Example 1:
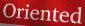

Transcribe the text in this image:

Oriented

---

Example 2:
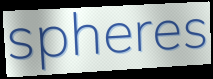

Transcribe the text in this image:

spheres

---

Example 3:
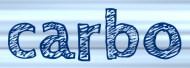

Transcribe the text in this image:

carbo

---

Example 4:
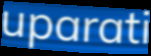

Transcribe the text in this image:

uparati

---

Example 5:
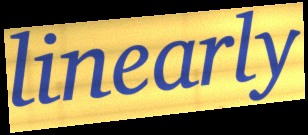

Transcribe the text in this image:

linearly